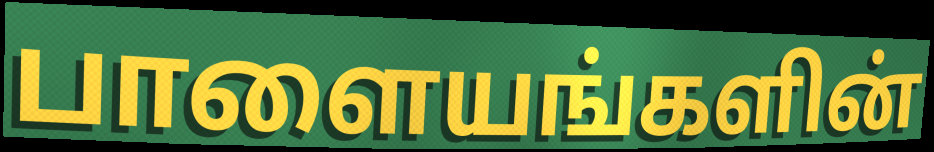
பாளையங்களின்